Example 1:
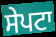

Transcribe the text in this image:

ਸੇਪਟਾ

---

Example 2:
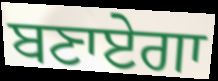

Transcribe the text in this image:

ਬਣਾਏਗਾ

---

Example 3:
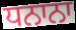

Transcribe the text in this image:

ਧਨਾਨਾ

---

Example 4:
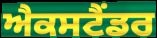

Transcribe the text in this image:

ਐਕਸਟੈਂਡਰ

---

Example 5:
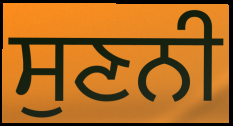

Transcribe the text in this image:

ਸੁਣਨੀ